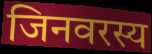
जिनवरस्य